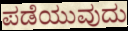
ಪಡೆಯುವುದು